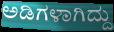
ಅಡಿಗಳಾಗಿದ್ದು